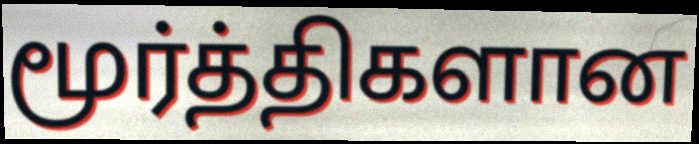
மூர்த்திகளான